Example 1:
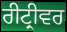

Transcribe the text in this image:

ਰੀਟ੍ਰੀਵਰ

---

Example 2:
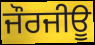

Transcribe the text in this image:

ਜੌਰਜੀਊ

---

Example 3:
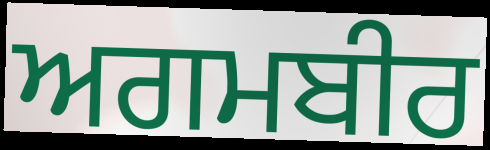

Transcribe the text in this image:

ਅਗਮਬੀਰ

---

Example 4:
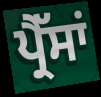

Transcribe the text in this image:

ਪ੍ਰੈੱਸਾਂ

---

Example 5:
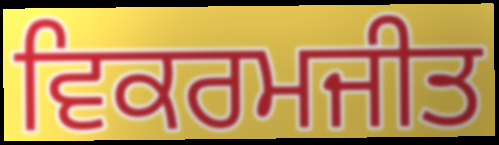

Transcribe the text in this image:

ਵਿਕਰਮਜੀਤ